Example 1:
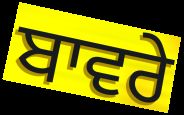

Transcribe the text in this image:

ਬਾਵਰੇ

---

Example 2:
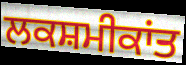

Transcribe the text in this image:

ਲਕਸ਼ਮੀਕਾਂਤ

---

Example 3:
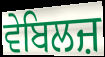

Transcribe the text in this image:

ਵੇਬਿਲਜ਼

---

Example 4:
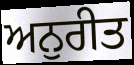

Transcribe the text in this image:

ਅਨੁਰੀਤ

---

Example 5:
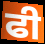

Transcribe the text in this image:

ਫੀ